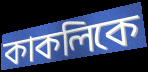
কাকলিকে